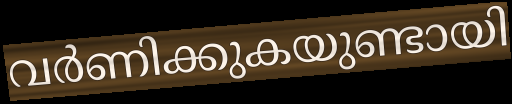
വർണിക്കുകയുണ്ടായി